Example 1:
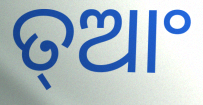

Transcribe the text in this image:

ତ୍ଆଂ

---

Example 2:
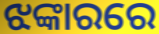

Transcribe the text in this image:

ଝଙ୍କାରରେ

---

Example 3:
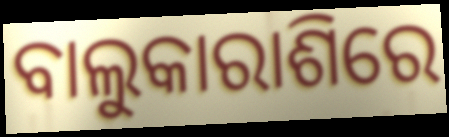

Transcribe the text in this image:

ବାଲୁକାରାଶିରେ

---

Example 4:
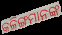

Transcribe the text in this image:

କଳିଙ୍ଗମାନଙ୍କ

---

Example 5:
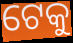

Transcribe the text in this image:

ଟେକୁ